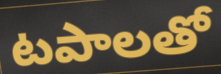
టపాలతో